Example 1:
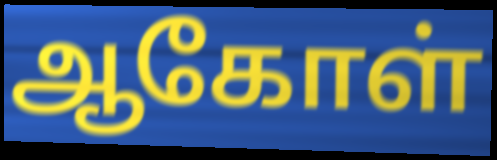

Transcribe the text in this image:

ஆகோள்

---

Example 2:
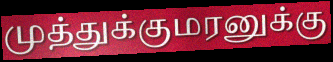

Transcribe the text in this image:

முத்துக்குமரனுக்கு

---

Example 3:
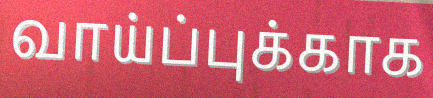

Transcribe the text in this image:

வாய்ப்புக்காக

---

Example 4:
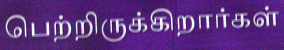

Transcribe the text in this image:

பெற்றிருக்கிறார்கள்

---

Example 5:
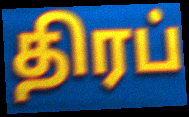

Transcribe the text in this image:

திரப்